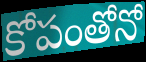
కోపంతోనో